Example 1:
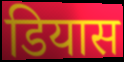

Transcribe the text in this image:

डियास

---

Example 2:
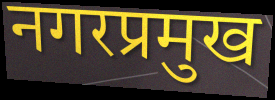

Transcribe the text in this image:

नगरप्रमुख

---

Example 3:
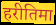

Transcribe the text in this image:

हरीतिमा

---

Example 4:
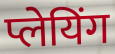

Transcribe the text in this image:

प्लेयिंग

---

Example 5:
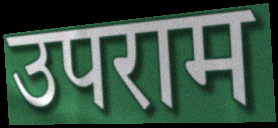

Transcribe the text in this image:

उपराम